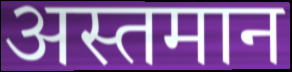
अस्तमान